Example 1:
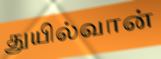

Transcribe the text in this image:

துயில்வான்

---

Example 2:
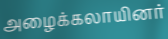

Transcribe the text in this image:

அழைக்கலாயினர்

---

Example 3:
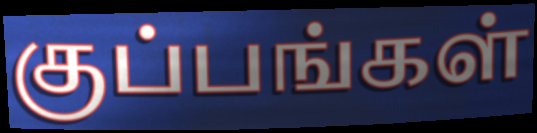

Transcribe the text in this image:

குப்பங்கள்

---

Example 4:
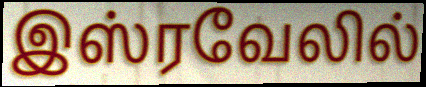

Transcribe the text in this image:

இஸ்ரவேலில்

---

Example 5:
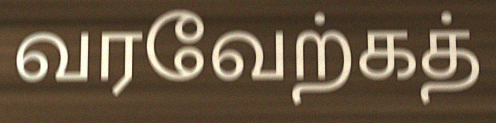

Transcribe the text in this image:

வரவேற்கத்